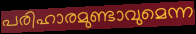
പരിഹാരമുണ്ടാവുമെന്ന